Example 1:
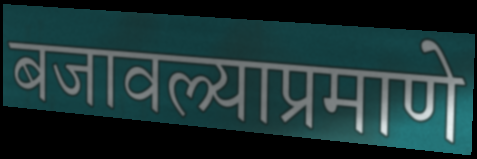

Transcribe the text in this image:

बजावल्याप्रमाणे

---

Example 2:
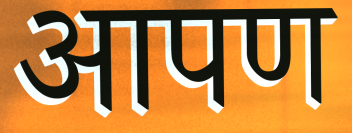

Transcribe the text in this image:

आपण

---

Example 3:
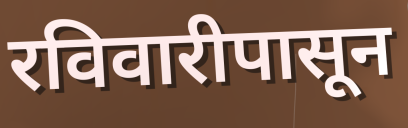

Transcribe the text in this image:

रविवारीपासून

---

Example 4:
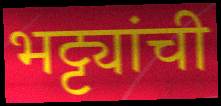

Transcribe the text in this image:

भट्ट्यांची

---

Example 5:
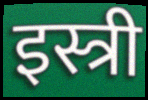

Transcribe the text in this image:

इस्त्री